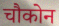
चौकोन